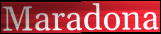
Maradona